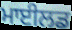
ਮਾਈਲਡ